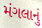
મંગલાનું